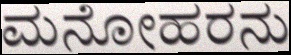
ಮನೋಹರನು